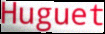
Huguet